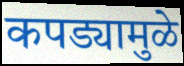
कपड्यामुळे